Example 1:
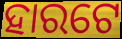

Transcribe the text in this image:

ହାରଟେ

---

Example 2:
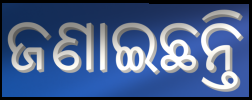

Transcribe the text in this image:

ଜଣାଇଛନ୍ତି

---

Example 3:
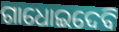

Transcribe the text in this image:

ଗାଧୋଇଦେବି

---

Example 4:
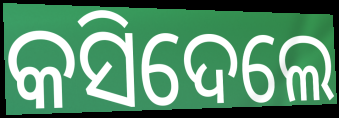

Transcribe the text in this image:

କସିଦେଲେ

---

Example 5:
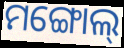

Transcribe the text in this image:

ମଙ୍ଗୋଲ୍